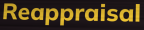
Reappraisal